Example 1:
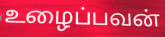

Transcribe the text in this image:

உழைப்பவன்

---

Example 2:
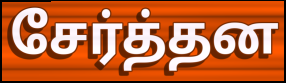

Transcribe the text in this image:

சேர்த்தன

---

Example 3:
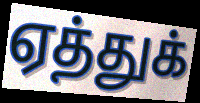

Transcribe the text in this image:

ஏத்துக்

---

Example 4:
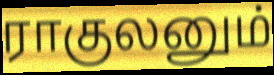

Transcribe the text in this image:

ராகுலனும்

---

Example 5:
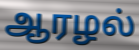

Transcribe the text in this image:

ஆரழல்